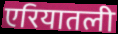
एरियातली